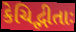
કેચિદ્ભીતાઃ